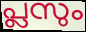
പ്ലസും